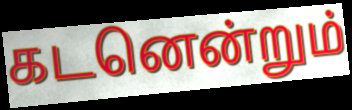
கடனென்றும்